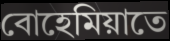
বোহেমিয়াতে